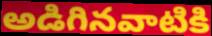
అడిగినవాటికి